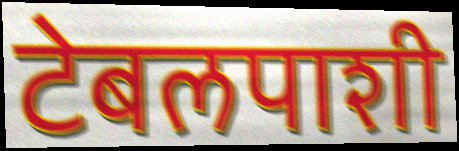
टेबलपाशी